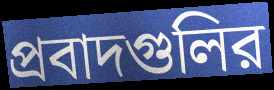
প্রবাদগুলির